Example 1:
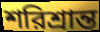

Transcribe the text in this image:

শরিশ্রান্ত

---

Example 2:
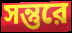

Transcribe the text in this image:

সন্তুরে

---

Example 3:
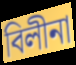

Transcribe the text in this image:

বিলীনা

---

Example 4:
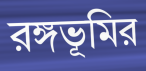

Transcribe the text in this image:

রঙ্গভূমির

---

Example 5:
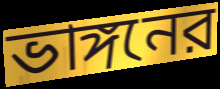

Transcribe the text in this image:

ভাঙ্গনের